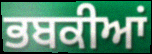
ਭਬਕੀਆਂ